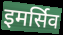
इमर्सिव